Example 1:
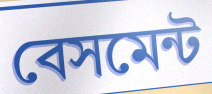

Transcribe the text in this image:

বেসমেন্ট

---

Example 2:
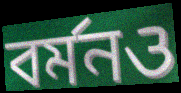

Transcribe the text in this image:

বর্মনও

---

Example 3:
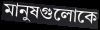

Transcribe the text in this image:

মানুষগুলোকে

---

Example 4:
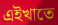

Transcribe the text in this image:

এইখাতে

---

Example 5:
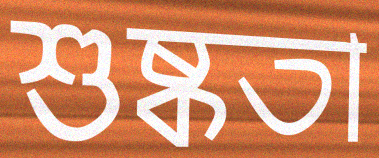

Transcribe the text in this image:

শুষ্কতা